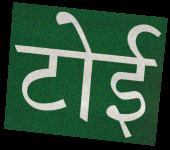
टोई